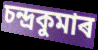
চন্দ্ৰকুমাৰ